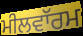
ਮੀਲਵਾੱਰਮ